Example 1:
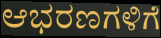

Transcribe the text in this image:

ಆಭರಣಗಳಿಗೆ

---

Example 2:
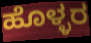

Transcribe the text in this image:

ಹೊಳ್ಳರ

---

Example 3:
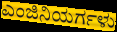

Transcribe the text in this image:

ಎಂಜಿನಿಯರ್ಗಳು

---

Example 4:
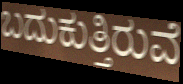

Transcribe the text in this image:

ಬದುಕುತ್ತಿರುವೆ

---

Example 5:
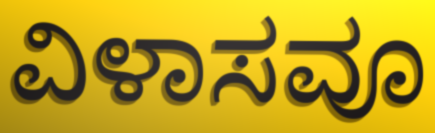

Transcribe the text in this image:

ವಿಳಾಸವೂ